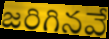
జరిగినవే